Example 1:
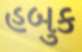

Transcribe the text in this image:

હબુક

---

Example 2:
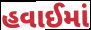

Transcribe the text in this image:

હવાઈમાં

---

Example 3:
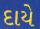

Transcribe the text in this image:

દાયે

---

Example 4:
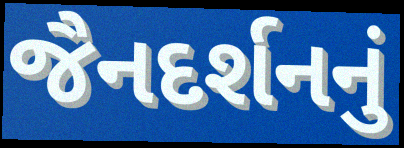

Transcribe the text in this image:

જૈનદર્શનનું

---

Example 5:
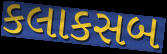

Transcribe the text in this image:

કલાકસબ